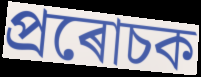
প্ৰৰোচক